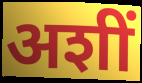
अशीं